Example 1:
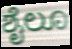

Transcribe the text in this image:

ಶೈಲೂ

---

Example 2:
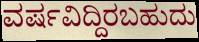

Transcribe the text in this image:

ವರ್ಷವಿದ್ದಿರಬಹುದು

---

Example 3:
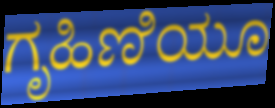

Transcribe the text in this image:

ಗೃಹಿಣಿಯೂ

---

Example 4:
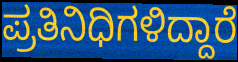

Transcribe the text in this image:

ಪ್ರತಿನಿಧಿಗಳಿದ್ದಾರೆ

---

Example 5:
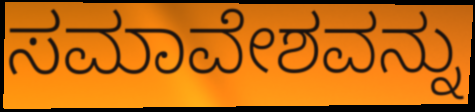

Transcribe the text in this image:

ಸಮಾವೇಶವನ್ನು